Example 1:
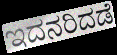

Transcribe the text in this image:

ಇದನರಿದಡೆ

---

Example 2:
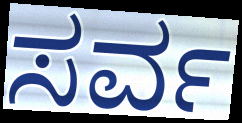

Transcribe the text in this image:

ಸರ್ವ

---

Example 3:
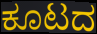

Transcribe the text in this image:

ಕೂಟದ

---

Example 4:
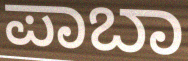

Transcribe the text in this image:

ಪಾಬಾ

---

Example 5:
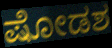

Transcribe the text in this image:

ಷೋಡಶ